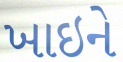
ખાઇને